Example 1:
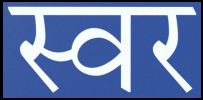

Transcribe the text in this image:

स्वर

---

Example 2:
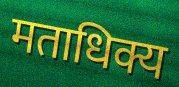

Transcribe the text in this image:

मताधिक्य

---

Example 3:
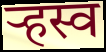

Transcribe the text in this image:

ऱ्हस्व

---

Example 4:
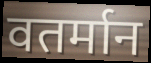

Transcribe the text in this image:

वतर्मान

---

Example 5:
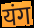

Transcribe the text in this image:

यंग